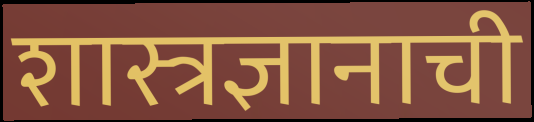
शास्त्रज्ञानाची